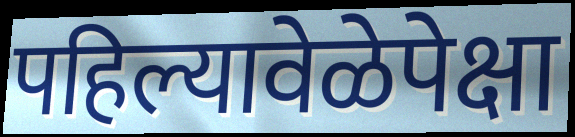
पहिल्यावेळेपेक्षा